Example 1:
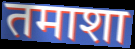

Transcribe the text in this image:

तमाशा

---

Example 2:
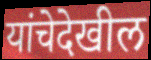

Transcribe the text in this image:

यांचेदेखील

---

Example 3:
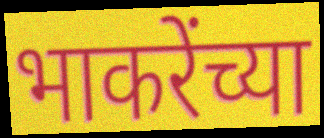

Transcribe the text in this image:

भाकरेंच्या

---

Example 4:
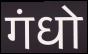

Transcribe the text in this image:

गंधो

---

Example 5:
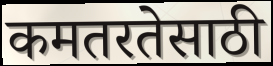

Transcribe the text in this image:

कमतरतेसाठी